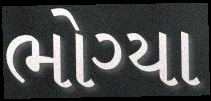
ભોગ્યા